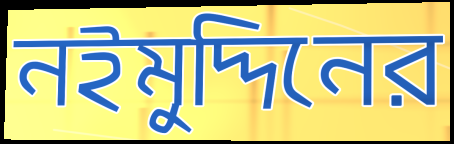
নইমুদ্দিনের